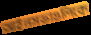
আইনসভাগুলিকে